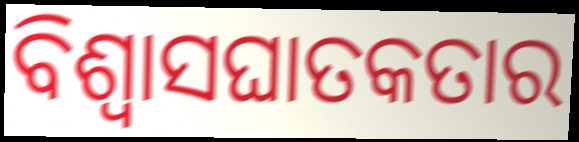
ବିଶ୍ୱାସଘାତକତାର